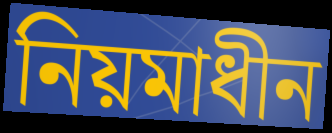
নিয়মাধীন